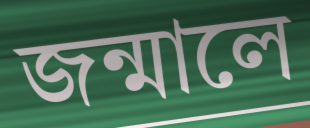
জন্মালে